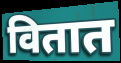
वितात